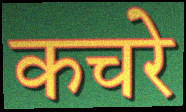
कचरे